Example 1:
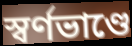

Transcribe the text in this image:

স্বর্ণভাণ্ডে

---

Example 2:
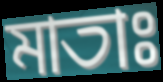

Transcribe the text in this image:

মাতাঃ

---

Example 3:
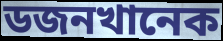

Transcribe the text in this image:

ডজনখানেক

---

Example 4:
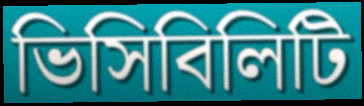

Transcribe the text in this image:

ভিসিবিলিটি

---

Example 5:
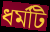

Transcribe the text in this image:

ধর্মটি